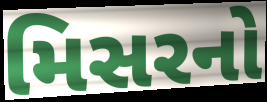
મિસરનો